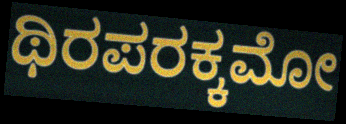
ಥಿರಪರಕ್ಕಮೋ